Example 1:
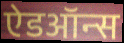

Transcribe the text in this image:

ऐडऑन्स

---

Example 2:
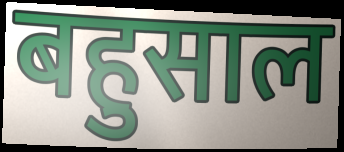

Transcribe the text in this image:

बहुसाल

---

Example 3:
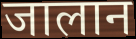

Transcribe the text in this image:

जालान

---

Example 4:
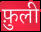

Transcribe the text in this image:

फ़ुली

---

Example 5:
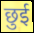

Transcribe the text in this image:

छुई